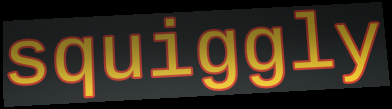
squiggly